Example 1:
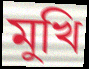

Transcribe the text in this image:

মুখি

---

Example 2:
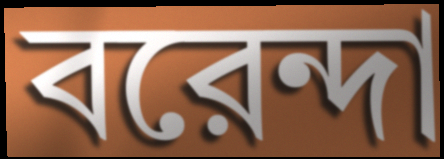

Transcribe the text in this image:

বরেন্দা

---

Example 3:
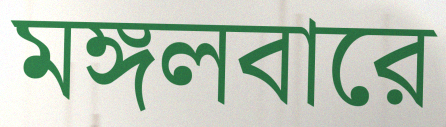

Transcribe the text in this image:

মঙ্গলবারে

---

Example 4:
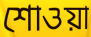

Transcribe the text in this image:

শোওয়া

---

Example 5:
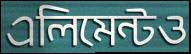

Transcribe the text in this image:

এলিমেন্টও